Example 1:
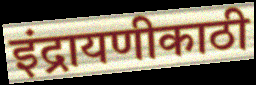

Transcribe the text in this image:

इंद्रायणीकाठी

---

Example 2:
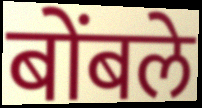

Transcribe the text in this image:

बोंबले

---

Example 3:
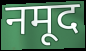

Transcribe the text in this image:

नमूद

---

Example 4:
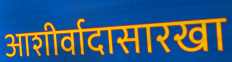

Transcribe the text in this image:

आशीर्वादासारखा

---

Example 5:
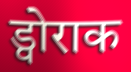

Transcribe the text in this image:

ड्वोराक